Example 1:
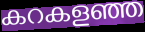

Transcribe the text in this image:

കറകളഞ്ഞ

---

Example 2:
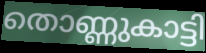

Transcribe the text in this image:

തൊണ്ണുകാട്ടി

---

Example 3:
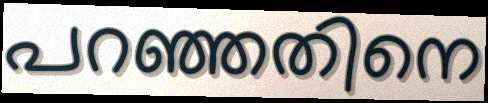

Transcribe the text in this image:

പറഞ്ഞതിനെ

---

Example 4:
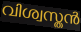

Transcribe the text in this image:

വിശ്വസ്തൻ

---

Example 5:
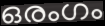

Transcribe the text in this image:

ഒരംഗം